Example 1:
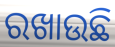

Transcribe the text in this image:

ରଖାଉଛି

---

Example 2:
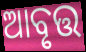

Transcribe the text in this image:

ଆବୃତ୍ତ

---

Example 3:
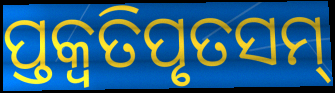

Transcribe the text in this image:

ପ୍ତକ୍ଵତିପୃତସମ୍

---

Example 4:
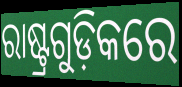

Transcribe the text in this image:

ରାଷ୍ଟ୍ରଗୁଡ଼ିକରେ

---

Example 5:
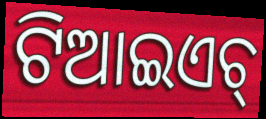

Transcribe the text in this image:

ଟିଆଇଏଚ୍